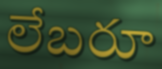
లేబరూ